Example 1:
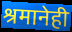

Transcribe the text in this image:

श्रमानेही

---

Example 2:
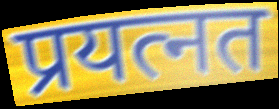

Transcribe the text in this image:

प्रयत्नत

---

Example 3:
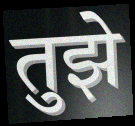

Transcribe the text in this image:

तुझे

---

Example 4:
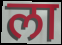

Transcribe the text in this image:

ला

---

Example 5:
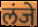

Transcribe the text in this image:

लंजे